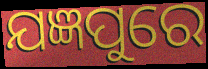
ଯଜ୍ଞପୁରେ